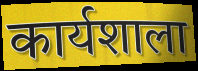
कार्यशाला